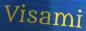
Visami